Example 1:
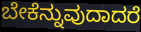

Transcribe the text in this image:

ಬೇಕೆನ್ನುವುದಾದರೆ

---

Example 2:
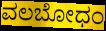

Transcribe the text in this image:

ವಲಬೋಧಂ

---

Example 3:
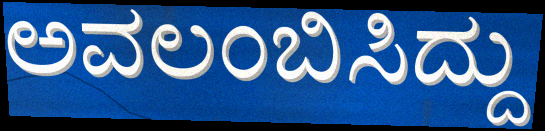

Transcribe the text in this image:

ಅವಲಂಬಿಸಿದ್ದು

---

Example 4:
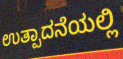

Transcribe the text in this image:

ಉತ್ಪಾದನೆಯಲ್ಲಿ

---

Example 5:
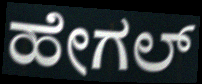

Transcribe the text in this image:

ಹೇಗಲ್